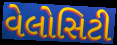
વેલોસિટી